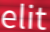
elit